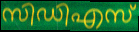
സിഡിഎസ്